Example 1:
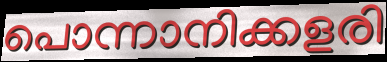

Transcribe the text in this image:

പൊന്നാനിക്കളരി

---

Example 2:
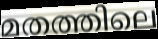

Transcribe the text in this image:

മതത്തിലെ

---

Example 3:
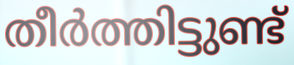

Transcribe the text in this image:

തീർത്തിട്ടുണ്ട്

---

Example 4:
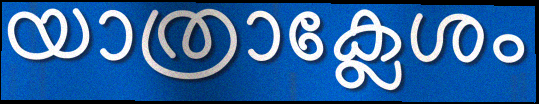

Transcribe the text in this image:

യാത്രാക്ലേശം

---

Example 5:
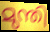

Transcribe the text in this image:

മുന്തി